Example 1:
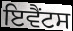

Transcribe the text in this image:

ਇਵੈਂਟਸ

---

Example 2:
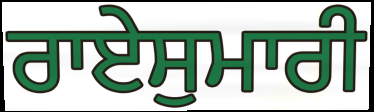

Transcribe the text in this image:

ਰਾਏਸੁਮਾਰੀ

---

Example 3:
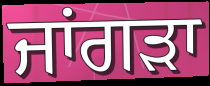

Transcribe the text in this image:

ਜਾਂਗੜਾ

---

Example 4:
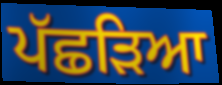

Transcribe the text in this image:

ਪੱਛੜਿਆ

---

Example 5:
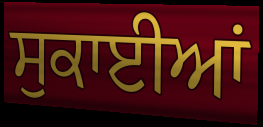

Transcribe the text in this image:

ਸੁਕਾਈਆਂ